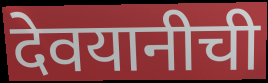
देवयानीची